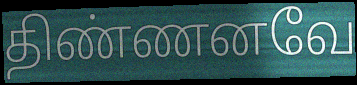
திண்ணனவே